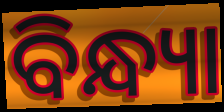
ବିନ୍ଧ୍ୟା